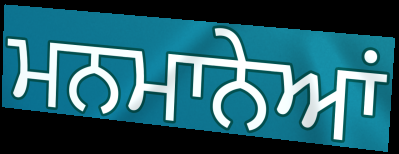
ਮਨਮਾਨੇਆਂ